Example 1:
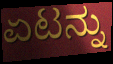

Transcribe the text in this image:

ಏಟನ್ನು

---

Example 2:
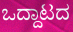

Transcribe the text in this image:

ಒದ್ದಾಟದ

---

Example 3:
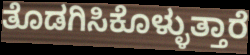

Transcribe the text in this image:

ತೊಡಗಿಸಿಕೊಳ್ಳುತ್ತಾರೆ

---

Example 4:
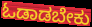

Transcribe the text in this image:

ಓಡಾಡಬೇಕು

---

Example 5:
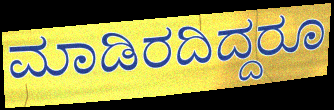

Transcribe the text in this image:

ಮಾಡಿರದಿದ್ದರೂ